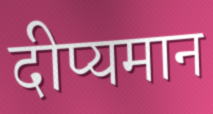
दीप्यमान